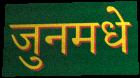
जुनमधे